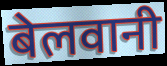
बेलवानी